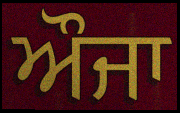
ਔਜਾ